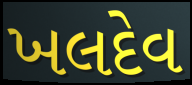
ખલદેવ